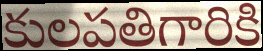
కులపతిగారికి